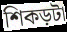
শিকড়টা